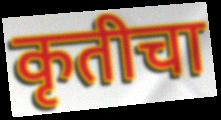
कृतीचा